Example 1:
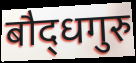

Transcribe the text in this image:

बौद्धगुरु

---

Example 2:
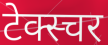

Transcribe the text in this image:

टेक्स्चर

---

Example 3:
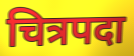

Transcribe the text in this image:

चित्रपदा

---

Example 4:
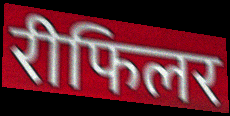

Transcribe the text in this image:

रीफिलर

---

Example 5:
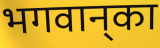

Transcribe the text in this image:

भगवान्‌का